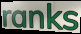
ranks